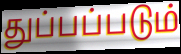
துப்பப்படும்